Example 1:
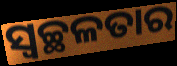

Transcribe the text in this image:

ସ୍ଵଚ୍ଛଳତାର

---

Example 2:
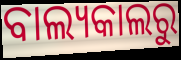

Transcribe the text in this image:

ବାଲ୍ୟକାଲରୁ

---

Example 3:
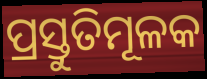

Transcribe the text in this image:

ପ୍ରସ୍ତୁତିମୂଳକ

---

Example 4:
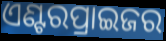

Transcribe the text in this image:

ଏଣ୍ଟରପ୍ରାଇଜର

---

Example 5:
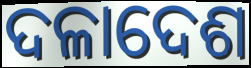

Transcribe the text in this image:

ଦଳାଦେଶ